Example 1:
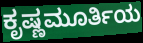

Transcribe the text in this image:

ಕೃಷ್ಣಮೂರ್ತಿಯ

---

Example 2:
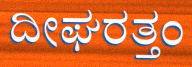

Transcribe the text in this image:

ದೀಘರತ್ತಂ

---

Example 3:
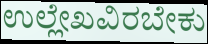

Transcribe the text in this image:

ಉಲ್ಲೇಖವಿರಬೇಕು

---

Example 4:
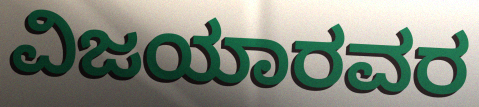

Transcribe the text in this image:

ವಿಜಯಾರವರ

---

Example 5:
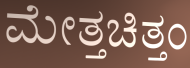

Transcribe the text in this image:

ಮೇತ್ತಚಿತ್ತಂ